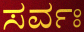
ಸರ್ವಃ